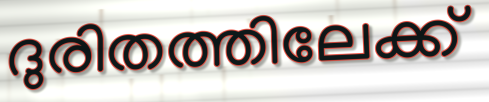
ദുരിതത്തിലേക്ക്